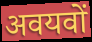
अवयवों